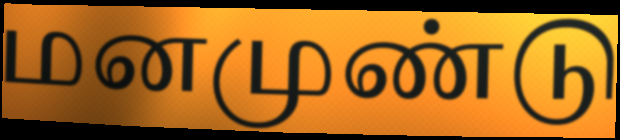
மனமுண்டு